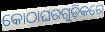
କୋଠାଘରଗୁଡ଼ିକରେ